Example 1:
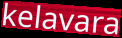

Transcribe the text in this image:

kelavara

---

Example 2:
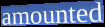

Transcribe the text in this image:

amounted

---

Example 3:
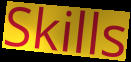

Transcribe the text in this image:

Skills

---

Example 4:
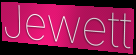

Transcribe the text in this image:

Jewett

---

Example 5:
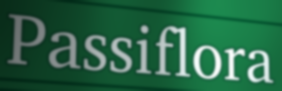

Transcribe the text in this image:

Passiflora